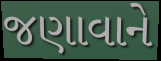
જણાવાને